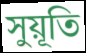
সুয়ূতি